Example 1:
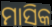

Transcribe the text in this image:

ମାସିକ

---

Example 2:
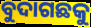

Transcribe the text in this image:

ବୁଦାଗଛକୁ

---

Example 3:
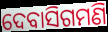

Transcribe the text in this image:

ଦେବାସିଗମଣି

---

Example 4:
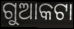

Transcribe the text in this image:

ଗୁଆକଟା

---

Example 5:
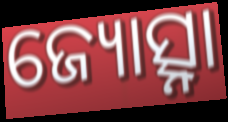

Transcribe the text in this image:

ଜ୍ୟୋତ୍ସ୍ନା